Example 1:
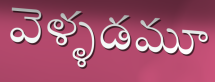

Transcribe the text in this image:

వెళ్ళడమూ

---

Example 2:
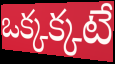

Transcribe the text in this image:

ఒక్కక్కటే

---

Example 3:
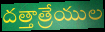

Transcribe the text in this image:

దత్తాత్రేయుల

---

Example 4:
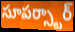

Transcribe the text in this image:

సూపర్స్టార్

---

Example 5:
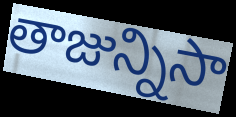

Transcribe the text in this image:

తాజున్నిసా